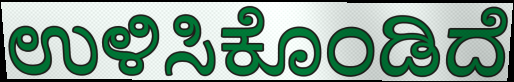
ಉಳಿಸಿಕೊಂಡಿದೆ